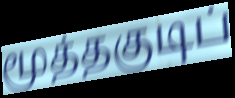
மூத்தகுடிப்